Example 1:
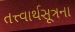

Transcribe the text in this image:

તત્ત્વાર્થસૂત્રના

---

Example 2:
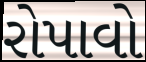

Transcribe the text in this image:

રોપાવો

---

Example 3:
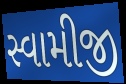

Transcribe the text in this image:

સ્વામીજી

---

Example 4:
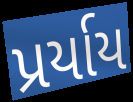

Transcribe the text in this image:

પ્રર્યાય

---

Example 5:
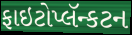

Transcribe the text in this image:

ફાઇટોપ્લૅન્કટન